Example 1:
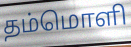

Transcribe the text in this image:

தம்மொளி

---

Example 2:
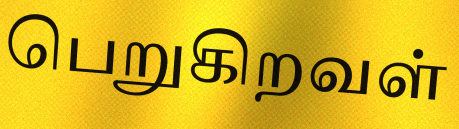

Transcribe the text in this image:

பெறுகிறவள்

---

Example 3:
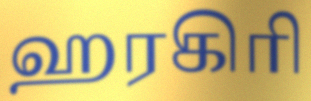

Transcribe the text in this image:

ஹரகிரி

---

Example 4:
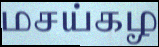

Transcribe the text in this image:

மசய்கழ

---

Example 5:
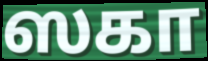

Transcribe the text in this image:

ஸகா